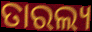
ତାରଲ୍ୟ